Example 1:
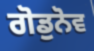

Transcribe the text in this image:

ਗੋਡੁਨੋਵ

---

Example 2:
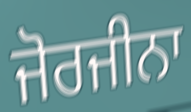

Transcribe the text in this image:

ਜੋਰਜੀਨਾ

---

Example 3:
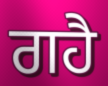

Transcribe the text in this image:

ਗਹੈ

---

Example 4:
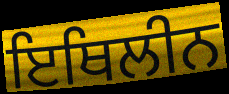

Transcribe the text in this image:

ਇਥਿਲੀਨ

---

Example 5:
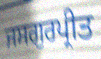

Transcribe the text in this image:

ਜਸਗੁਰਪ੍ਰੀਤ